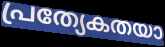
പ്രത്യേകതയാ